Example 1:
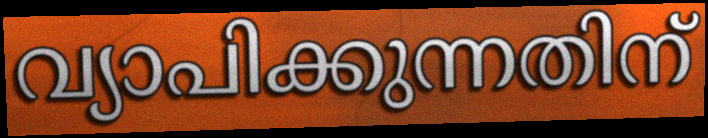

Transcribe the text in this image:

വ്യാപിക്കുന്നതിന്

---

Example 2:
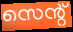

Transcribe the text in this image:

സെന്റ്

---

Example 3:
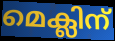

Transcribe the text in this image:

മെക്ലിന്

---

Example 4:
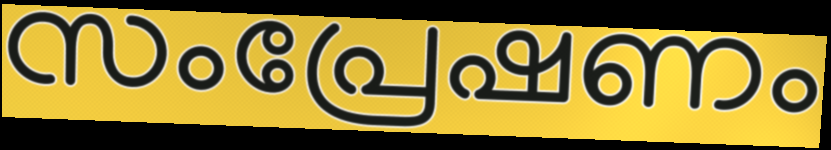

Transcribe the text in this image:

സംപ്രേഷണം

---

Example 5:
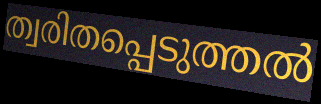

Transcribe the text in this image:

ത്വരിതപ്പെടുത്തൽ